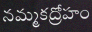
నమ్మకద్రోహం